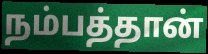
நம்பத்தான்